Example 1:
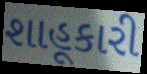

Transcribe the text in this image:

શાહૂકારી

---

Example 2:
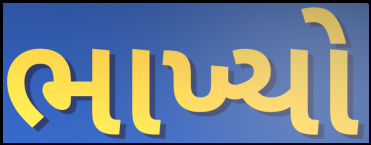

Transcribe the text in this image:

ભાખ્યો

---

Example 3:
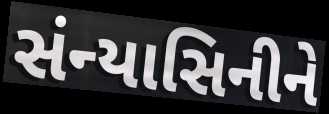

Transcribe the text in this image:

સંન્યાસિનીને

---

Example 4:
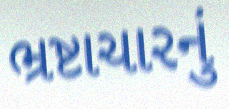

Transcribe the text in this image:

ભ્રષ્ટાચારનું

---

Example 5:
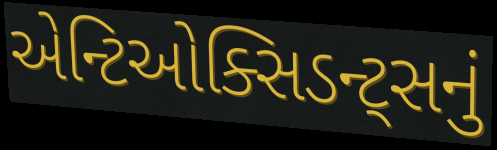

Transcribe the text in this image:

એન્ટિઓક્સિડન્ટ્સનું